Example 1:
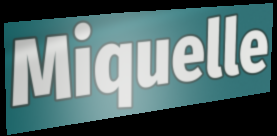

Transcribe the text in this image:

Miquelle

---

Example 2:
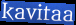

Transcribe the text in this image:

kavitaa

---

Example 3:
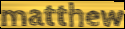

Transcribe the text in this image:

matthew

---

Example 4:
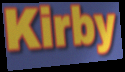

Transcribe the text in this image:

Kirby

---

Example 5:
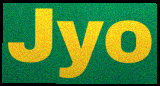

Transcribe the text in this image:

Jyo